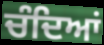
ਚੰਦਿਆਂ